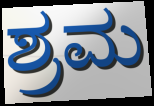
ಶ್ರಮ